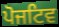
ਪੋਜਟਿਵ